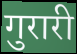
गुरारी